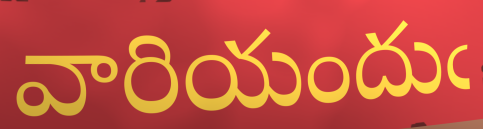
వారియందుఁ